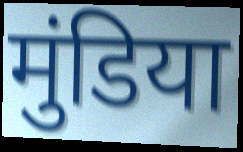
मुंडिया